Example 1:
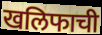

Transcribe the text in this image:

खलिफाची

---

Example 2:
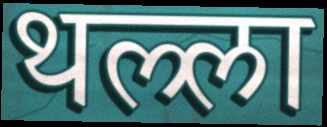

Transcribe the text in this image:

थल्ला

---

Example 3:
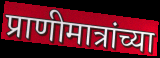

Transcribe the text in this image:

प्राणीमात्रांच्या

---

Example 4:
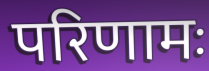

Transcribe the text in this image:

परिणामः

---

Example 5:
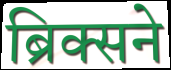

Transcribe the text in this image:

ब्रिक्सने